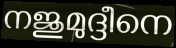
നജുമുദ്ദീനെ